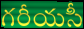
గరీయసీ